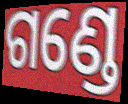
ଗଣ୍ଡେ